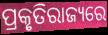
ପ୍ରକୃତିରାଜ୍ୟରେ